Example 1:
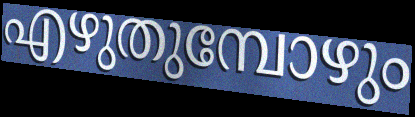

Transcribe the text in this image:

എഴുതുമ്പോഴും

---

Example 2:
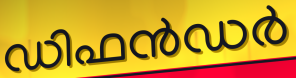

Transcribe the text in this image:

ഡിഫൻഡർ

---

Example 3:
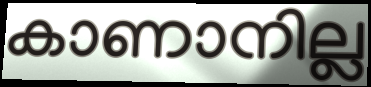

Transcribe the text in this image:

കാണാനില്ല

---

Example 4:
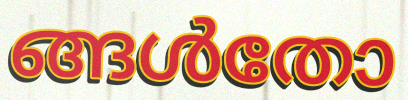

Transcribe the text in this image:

ങ്ങൾതോ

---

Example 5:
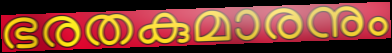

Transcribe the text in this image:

ഭരതകുമാരനും